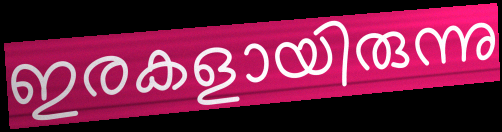
ഇരകളായിരുന്നു